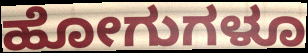
ಹೋಗುಗಳೂ